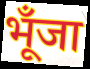
भूँजा